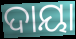
ଦାୟା